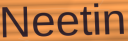
Neetin